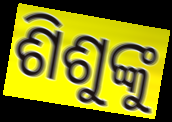
ଶିଶୁଙ୍କୁ